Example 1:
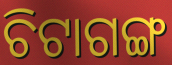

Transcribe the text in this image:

ଚିଟାଗଙ୍ଗ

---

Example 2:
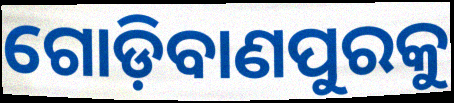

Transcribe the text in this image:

ଗୋଡ଼ିବାଣପୁରକୁ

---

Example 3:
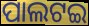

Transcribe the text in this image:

ପାଲଟଇ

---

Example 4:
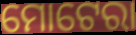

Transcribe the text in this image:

ମୋଟେରା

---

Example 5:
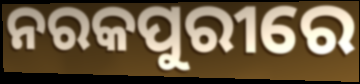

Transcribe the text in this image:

ନରକପୁରୀରେ